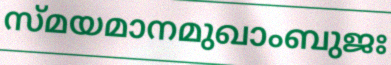
സ്മയമാനമുഖാംബുജഃ